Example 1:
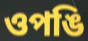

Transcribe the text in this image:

ওপঙি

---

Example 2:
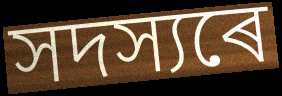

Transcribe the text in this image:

সদস্যৰে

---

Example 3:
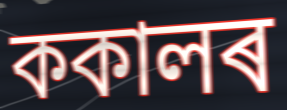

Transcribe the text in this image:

ককালৰ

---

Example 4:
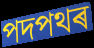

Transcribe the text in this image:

পদপথৰ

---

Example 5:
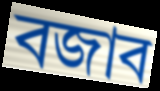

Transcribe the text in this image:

বজাব